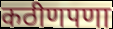
कठीणपणा